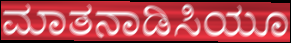
ಮಾತನಾಡಿಸಿಯೂ